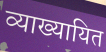
व्याख्यायित